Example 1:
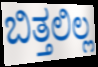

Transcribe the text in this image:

ಬಿತ್ತಲಿಲ್ಲ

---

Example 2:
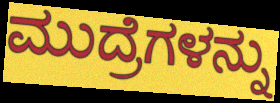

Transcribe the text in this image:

ಮುದ್ರೆಗಳನ್ನು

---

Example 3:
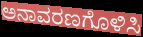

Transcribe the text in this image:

ಅನಾವರಣಗೊಳಿಸಿ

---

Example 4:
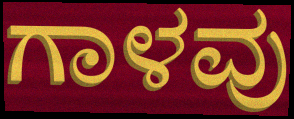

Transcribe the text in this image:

ಗಾಳವು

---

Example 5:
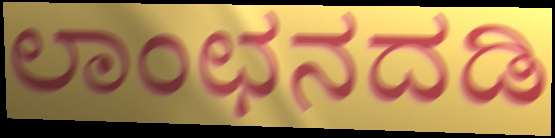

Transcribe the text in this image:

ಲಾಂಛನದಡಿ